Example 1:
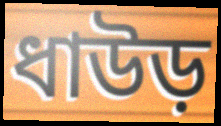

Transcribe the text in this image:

ধাউড়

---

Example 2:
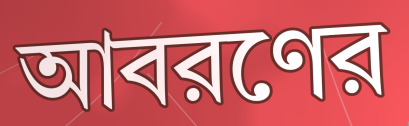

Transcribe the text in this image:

আবরণের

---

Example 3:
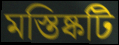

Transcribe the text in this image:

মস্তিষ্কটি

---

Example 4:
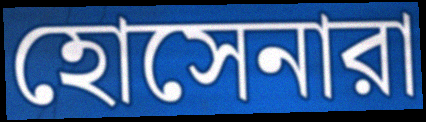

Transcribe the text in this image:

হোসেনারা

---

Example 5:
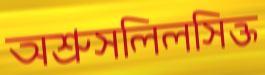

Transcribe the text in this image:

অশ্রুসলিলসিক্ত